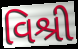
વિશ્રી